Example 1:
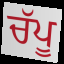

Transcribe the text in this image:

ਚੱਪੂ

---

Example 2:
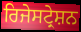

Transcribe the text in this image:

ਰਿਜੇਸਟ੍ਰੇਸ਼ਨ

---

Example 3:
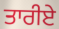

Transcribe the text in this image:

ਤਾਰੀਏ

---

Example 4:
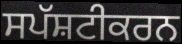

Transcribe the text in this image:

ਸਪੱਸ਼ਟੀਕਰਨ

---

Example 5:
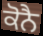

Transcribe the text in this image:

ਕੋਨੈ